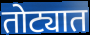
तोट्यात